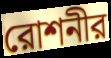
রোশনীর